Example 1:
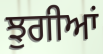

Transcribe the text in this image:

ਝੁਗੀਆਂ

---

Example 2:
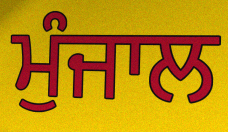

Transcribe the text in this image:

ਮੁੰਜਾਲ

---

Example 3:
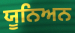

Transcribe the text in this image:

ਯੂਨਿਅਨ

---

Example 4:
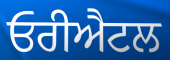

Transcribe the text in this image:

ਓਰੀਐਟਲ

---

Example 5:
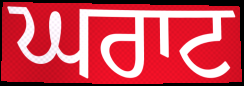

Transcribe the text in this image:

ਘਰਾਟ